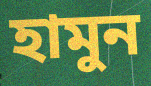
হামুন